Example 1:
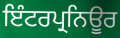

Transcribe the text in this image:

ਇੰਟਰਪ੍ਰਨਿਊਰ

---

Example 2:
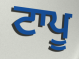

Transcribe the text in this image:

ਟਾਪੂ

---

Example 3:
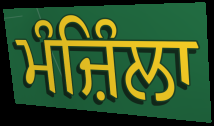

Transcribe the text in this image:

ਮੰਜ਼ਿੰਲਾ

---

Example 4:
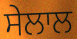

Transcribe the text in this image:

ਸੇਲਾਲ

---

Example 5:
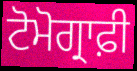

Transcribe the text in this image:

ਟੋਮੋਗ੍ਰਾਫ਼ੀ